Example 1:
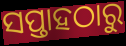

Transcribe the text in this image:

ସପ୍ତାହଠାରୁ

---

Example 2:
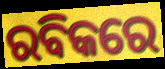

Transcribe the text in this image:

ରବିକରେ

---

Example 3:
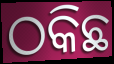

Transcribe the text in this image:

ଠକିଛ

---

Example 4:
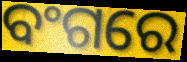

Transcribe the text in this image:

ବଂଗରେ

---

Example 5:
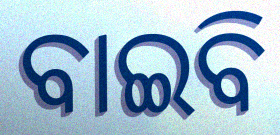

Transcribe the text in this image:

ବାଇବି